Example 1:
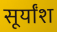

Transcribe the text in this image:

सूर्यांश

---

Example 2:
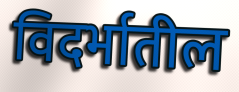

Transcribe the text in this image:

विदर्भातील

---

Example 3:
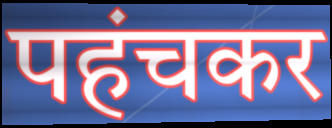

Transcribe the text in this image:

पहंचकर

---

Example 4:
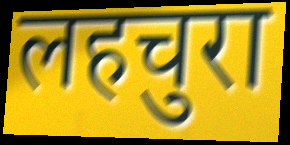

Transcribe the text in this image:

लहचुरा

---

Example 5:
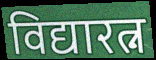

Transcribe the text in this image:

विद्यारत्न